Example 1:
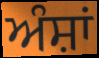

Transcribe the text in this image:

ਅੰਸ਼ਾਂ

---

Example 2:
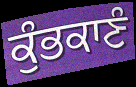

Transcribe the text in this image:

ਕੁੰਭਕਾਣੰ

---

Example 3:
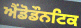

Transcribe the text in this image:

ਐਂਡੋਡੌਨਟਿਕ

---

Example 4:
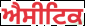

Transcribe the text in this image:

ਐਸੀਟਿਕ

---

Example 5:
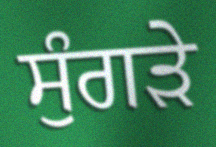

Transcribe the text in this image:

ਸੁੰਗੜੇ